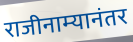
राजीनाम्यानंतर